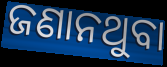
ଜଣାନଥୁବା